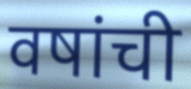
वषांची